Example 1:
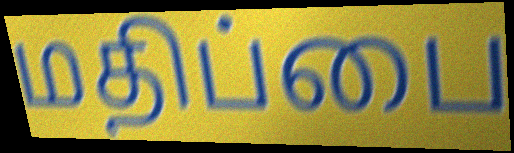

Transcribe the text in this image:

மதிப்பை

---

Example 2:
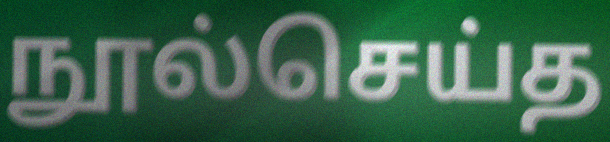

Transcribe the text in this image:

நூல்செய்த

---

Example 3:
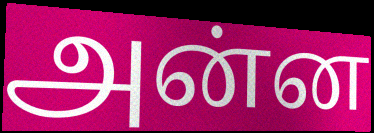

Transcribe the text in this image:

அன்ன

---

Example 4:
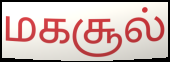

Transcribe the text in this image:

மகசூல்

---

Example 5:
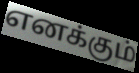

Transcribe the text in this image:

எனக்கும்